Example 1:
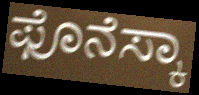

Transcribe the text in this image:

ಫೊನೆಸ್ಕಾ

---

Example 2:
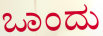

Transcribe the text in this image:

ಒಾಂದು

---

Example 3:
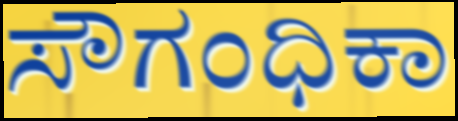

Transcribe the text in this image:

ಸೌಗಂಧಿಕಾ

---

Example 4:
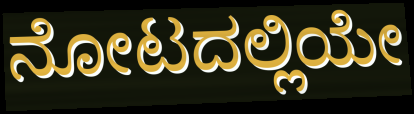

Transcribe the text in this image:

ನೋಟದಲ್ಲಿಯೇ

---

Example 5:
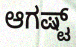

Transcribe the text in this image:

ಆಗಷ್ಟ್